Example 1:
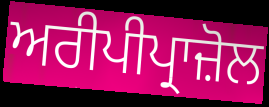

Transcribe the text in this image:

ਅਰੀਪੀਪ੍ਰਾਜ਼ੋਲ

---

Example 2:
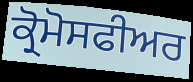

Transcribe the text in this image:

ਕ੍ਰੋਮੋਸਫੀਅਰ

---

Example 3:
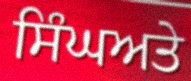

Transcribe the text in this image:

ਸਿੰਘਅਤੇ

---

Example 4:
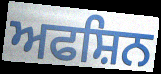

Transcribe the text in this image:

ਅਫਸ਼ਿਨ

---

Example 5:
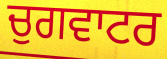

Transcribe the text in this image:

ਚੁਗਵਾਟਰ